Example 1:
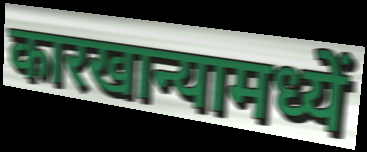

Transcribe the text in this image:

कारखान्यामध्यें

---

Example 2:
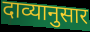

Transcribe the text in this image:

दाव्यानुसार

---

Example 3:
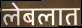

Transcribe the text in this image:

लेबलात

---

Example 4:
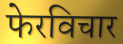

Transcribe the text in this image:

फेरविचार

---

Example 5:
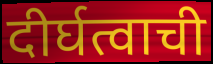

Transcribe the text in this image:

दीर्घत्वाची